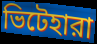
ভিটেহারা